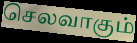
செலவாகும்